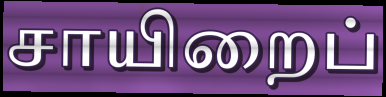
சாயிறைப்